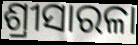
ଶ୍ରୀସାରଳା